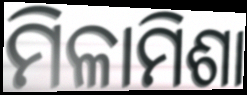
ମିଳାମିଶା